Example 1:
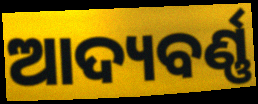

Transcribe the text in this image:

ଆଦ୍ୟବର୍ଣ୍ଣ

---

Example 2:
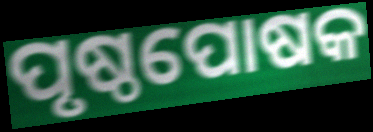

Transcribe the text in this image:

ପୃଷ୍ଠପୋଷକ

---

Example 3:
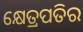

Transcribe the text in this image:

କ୍ଷେତ୍ରପତିର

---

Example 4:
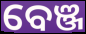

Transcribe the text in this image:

ବେଞ୍ଜ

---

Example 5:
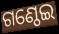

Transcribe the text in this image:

ଗଣ୍ଠେଇ